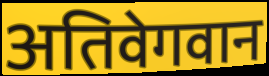
अतिवेगवान